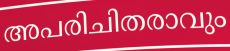
അപരിചിതരാവും